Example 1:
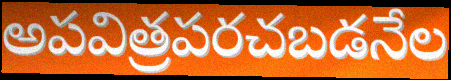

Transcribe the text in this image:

అపవిత్రపరచబడనేల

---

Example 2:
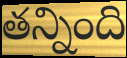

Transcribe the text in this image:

తన్నింది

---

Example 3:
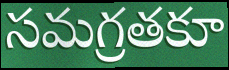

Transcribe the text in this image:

సమగ్రతకూ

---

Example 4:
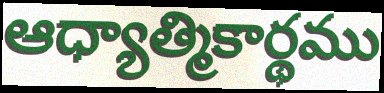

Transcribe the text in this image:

ఆధ్యాత్మికార్థము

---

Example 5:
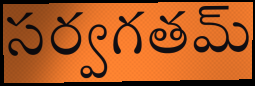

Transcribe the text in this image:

సర్వగతమ్